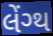
લેંગ્થ